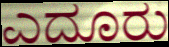
ಎದೂರು